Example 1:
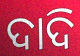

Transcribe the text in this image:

ଦାଦି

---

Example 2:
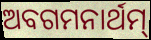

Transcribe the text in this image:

ଅବଗମନାର୍ଥମ୍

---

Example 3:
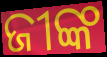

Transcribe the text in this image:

ଜୀଙ୍କ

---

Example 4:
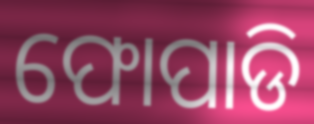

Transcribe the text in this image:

ଫୋପାଡି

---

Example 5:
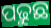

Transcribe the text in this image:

ପଢୁଛ